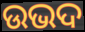
ଉଭଦ